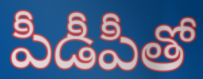
పీడీపీతో